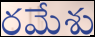
రమేశు